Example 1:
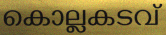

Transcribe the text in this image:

കൊല്ലകടവ്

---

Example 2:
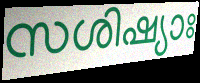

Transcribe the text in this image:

സശിഷ്യാഃ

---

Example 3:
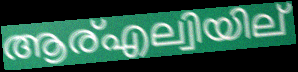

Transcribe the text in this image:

ആര്എല്വിയില്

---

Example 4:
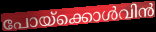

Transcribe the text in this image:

പോയ്ക്കൊൾവിൻ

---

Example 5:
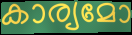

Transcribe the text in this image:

കാര്യമോ